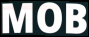
MOB